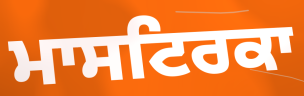
ਮਾਸਟਿਰਕਾ